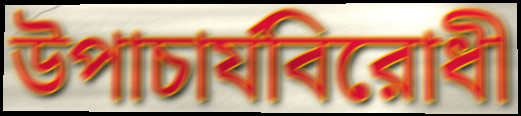
উপাচার্যবিরোধী